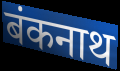
बंकनाथ